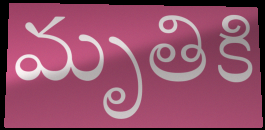
మృతికి